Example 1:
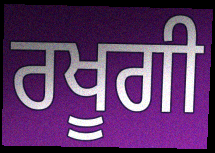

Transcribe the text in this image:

ਰਖੂਗੀ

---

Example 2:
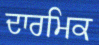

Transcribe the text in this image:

ਦਾਰਮਿਕ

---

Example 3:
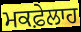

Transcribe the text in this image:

ਮਕਫ਼ੇਲਾਹ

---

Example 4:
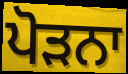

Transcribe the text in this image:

ਪੋੜਨਾ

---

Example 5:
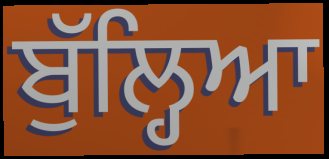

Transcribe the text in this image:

ਬੁੱਲ੍ਹਿਆ